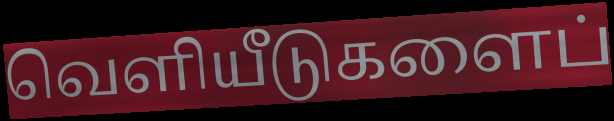
வெளியீடுகளைப்